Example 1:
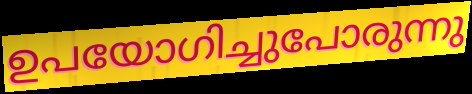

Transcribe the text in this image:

ഉപയോഗിച്ചുപോരുന്നു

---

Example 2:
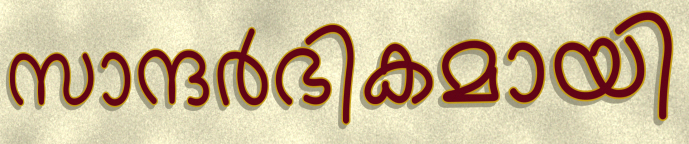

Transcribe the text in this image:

സാന്ദർഭികമായി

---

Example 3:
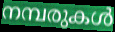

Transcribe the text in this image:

നമ്പരുകൾ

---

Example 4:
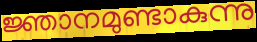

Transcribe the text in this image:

ജ്ഞാനമുണ്ടാകുന്നു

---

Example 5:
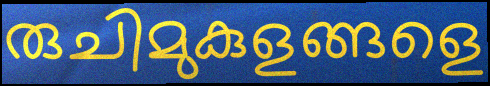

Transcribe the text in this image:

രുചിമുകുളങ്ങളെ